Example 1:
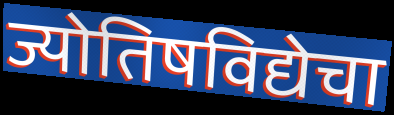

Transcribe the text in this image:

ज्योतिषविद्येचा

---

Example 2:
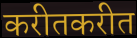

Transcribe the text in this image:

करीतकरीत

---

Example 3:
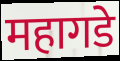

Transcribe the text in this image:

महागडे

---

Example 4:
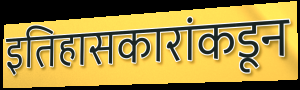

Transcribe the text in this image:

इतिहासकारांकडून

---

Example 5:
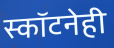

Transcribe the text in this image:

स्कॉटनेही